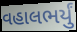
વહાલભર્યું